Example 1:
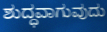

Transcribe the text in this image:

ಶುದ್ಧವಾಗುವುದು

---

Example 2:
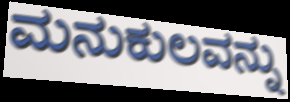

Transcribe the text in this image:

ಮನುಕುಲವನ್ನು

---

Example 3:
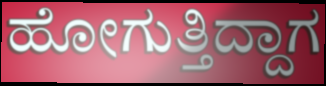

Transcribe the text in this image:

ಹೋಗುತ್ತಿದ್ದಾಗ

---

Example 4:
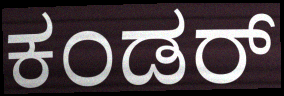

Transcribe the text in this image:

ಕಂಡರ್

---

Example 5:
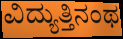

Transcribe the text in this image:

ವಿದ್ಯುತ್ತಿನಂಥ